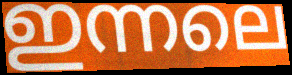
ഇന്നലെ